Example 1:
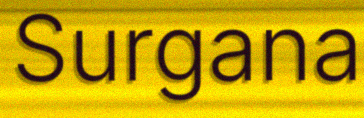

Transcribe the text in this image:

Surgana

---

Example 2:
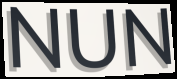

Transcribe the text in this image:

NUN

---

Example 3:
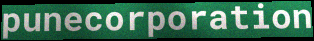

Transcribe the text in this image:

punecorporation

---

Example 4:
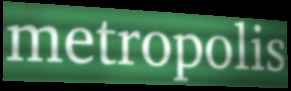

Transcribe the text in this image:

metropolis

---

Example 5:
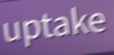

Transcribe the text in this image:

uptake